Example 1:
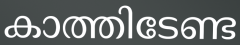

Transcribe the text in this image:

കാത്തിടേണ്ട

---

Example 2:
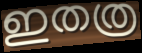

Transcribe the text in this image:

ഇതത്ര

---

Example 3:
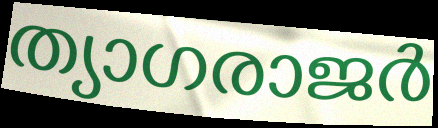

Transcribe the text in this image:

ത്യാഗരാജർ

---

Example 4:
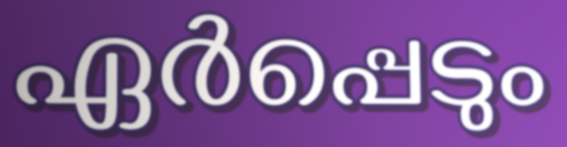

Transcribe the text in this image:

ഏർപ്പെടും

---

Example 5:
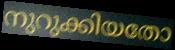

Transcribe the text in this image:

നുറുക്കിയതോ